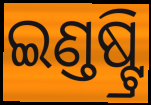
ଇଣ୍ଡଷ୍ଟ୍ରି